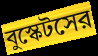
বুস্কেটসের